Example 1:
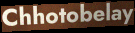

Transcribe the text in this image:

Chhotobelay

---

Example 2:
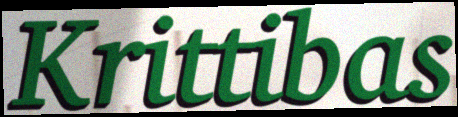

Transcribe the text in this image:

Krittibas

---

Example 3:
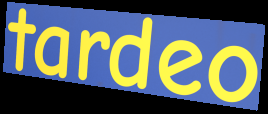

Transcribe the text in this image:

tardeo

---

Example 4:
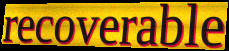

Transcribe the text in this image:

recoverable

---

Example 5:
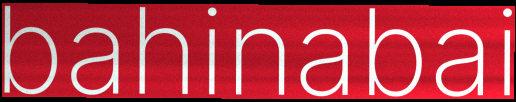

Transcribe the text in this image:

bahinabai